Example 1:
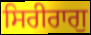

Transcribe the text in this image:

ਸਿਰੀਰਾਗੁ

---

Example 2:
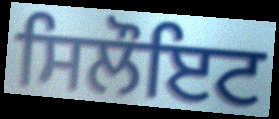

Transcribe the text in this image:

ਸਿਲੌਇਟ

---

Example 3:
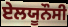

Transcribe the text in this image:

ਏਲਯੂਨੌਸੀ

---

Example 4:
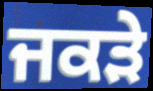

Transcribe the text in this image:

ਜਕੜੇ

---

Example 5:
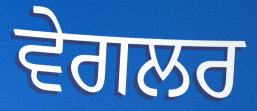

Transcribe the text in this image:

ਵੇਗਲਰ